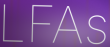
LFAs